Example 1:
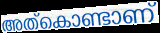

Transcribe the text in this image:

അത്കൊണ്ടാണ്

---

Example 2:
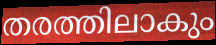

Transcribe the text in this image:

തരത്തിലാകും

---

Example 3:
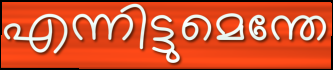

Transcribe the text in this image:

എന്നിട്ടുമെന്തേ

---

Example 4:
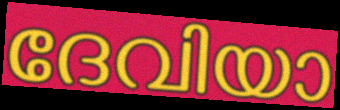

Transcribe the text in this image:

ദേവിയാ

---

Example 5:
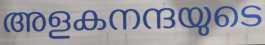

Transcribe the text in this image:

അളകനന്ദയുടെ